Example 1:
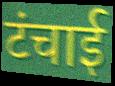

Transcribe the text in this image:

टंचाई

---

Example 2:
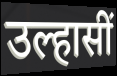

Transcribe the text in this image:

उल्हासीं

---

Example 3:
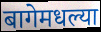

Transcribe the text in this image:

बागेमधल्या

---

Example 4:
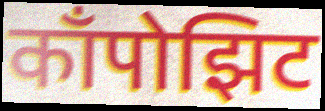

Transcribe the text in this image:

काँपोझिट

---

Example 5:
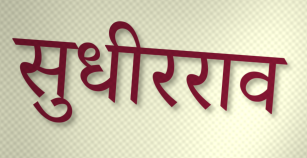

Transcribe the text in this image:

सुधीरराव